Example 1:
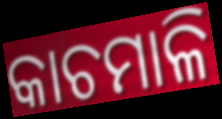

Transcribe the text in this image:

କାଚମାଳି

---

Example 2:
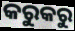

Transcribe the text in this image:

କରୁକରୁ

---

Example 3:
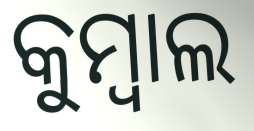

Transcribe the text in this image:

କୁମ୍ବାଲ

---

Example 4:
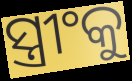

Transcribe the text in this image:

ସ୍ତ୍ରୀଂକୁ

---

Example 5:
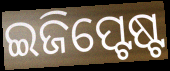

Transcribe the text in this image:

ଇଜିପ୍ଟେଷ୍ଟ